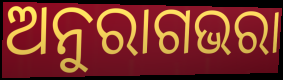
ଅନୁରାଗଭରା